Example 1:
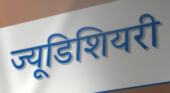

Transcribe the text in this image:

ज्यूडिशियरी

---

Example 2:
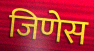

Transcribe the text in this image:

जिणेस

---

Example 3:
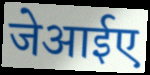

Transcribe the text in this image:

जेआईए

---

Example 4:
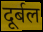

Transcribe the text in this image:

दूर्बल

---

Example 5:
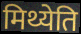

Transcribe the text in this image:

मिथ्येति